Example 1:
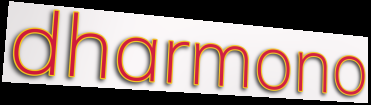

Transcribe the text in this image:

dharmono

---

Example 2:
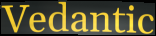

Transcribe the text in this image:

Vedantic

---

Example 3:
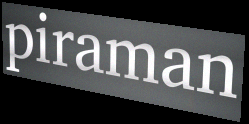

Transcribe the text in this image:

piraman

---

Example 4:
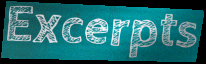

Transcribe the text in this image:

Excerpts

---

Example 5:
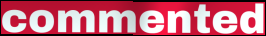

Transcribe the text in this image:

commented